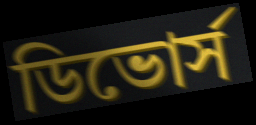
ডিভোর্স